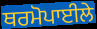
ਥਰਮੋਪਾਈਲੇ